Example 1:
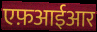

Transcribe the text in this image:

एफ़आईआर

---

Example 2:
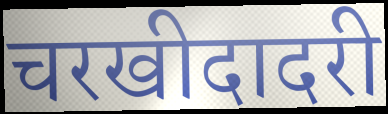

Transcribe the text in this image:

चरखीदादरी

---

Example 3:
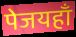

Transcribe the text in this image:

पेजयहाँ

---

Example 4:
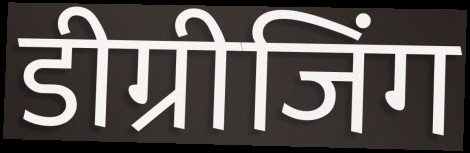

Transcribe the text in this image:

डीग्रीजिंग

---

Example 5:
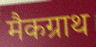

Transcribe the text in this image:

मैकग्राथ